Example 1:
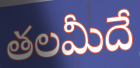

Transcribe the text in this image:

తలమీదే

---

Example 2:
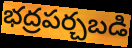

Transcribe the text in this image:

భద్రపర్చబడి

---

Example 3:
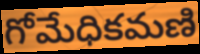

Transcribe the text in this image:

గోమేధికమణి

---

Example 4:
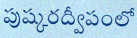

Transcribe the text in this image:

పుష్కరద్వీపంలో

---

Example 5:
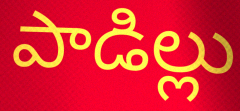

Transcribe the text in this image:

పాడిల్లు